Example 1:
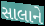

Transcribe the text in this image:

સાલાને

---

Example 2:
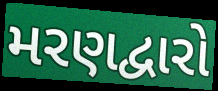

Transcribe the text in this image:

મરણદ્વારો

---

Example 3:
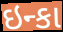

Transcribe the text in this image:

ઇન્કા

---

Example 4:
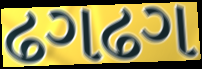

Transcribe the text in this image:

ઢગઢગ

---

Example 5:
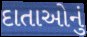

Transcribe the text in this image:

દાતાઓનું